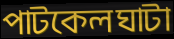
পাটকেলঘাটা